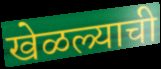
खेळल्याची